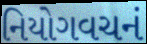
નિયોગવચનં